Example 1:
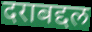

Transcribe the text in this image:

दराबद्दल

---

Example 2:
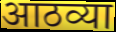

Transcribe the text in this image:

आठव्या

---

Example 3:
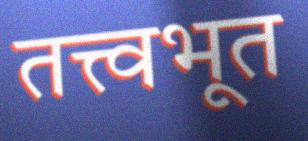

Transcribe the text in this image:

तत्त्वभूत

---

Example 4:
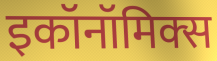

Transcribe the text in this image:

इकॉनॉमिक्‍स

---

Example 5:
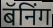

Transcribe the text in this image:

बॅनिंग